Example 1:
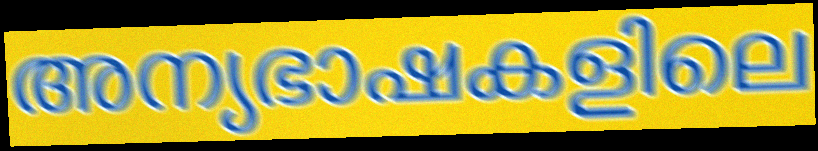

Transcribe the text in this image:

അന്യഭാഷകളിലെ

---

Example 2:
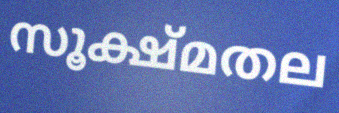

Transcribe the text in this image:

സൂക്ഷ്മതല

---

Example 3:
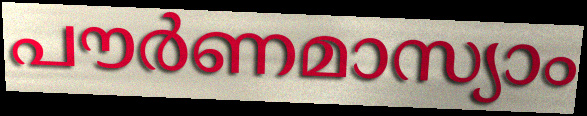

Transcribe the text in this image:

പൗർണമാസ്യാം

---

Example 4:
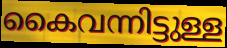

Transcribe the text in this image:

കൈവന്നിട്ടുള്ള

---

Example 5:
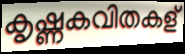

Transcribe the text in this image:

കൃഷ്ണകവിതകള്